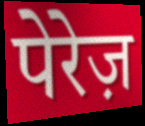
पेरेज़